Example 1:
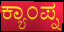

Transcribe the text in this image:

ಕ್ಯಾಂಪ್ನ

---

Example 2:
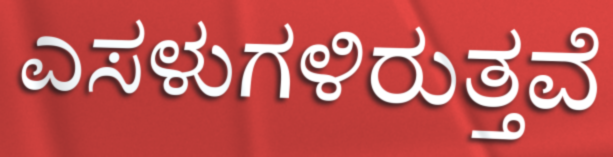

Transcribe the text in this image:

ಎಸಳುಗಳಿರುತ್ತವೆ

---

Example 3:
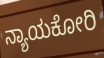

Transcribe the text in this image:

ನ್ಯಾಯಕೋರಿ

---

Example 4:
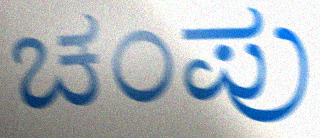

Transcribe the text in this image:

ಚಂಪು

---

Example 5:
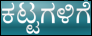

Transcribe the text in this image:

ಕಟ್ಟಗಳಿಗೆ